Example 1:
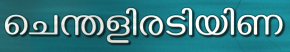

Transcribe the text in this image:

ചെന്തളിരടിയിണ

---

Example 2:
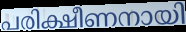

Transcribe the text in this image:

പരിക്ഷീണനായി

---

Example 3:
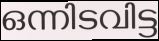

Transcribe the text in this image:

ഒന്നിടവിട്ട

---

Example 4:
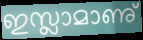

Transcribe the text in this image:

ഇസ്ലാമാണു്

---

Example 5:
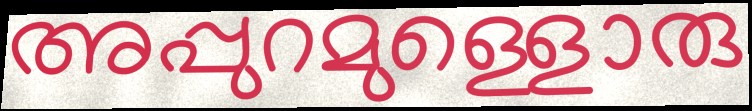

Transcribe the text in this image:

അപ്പുറമുള്ളൊരു